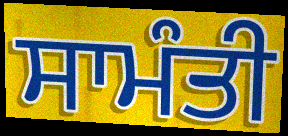
ਸਾਮੰਤੀ